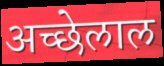
अच्छेलाल